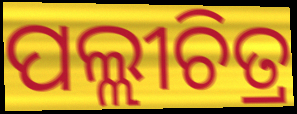
ପଲ୍ଲୀଚିତ୍ର